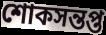
শোকসন্তপ্ত